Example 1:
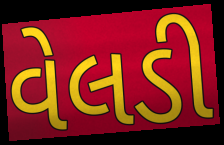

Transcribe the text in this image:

વેલડી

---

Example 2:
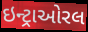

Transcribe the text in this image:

ઇન્ટ્રાઓરલ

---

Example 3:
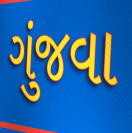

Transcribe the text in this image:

ગુંજવા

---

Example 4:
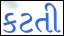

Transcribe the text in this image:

કટતી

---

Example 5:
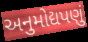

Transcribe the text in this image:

અનુમોદ્યપણું